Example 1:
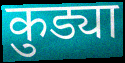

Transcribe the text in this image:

कुड्या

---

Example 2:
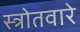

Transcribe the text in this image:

स्त्रोतवारे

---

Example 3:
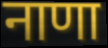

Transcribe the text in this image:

नाणा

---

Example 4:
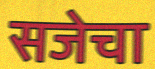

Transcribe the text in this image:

सजेचा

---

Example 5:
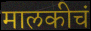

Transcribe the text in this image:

मालकीचं